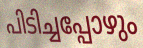
പിടിച്ചപ്പോഴും